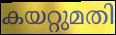
കയറ്റുമതി